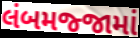
લંબમજ્જામાં